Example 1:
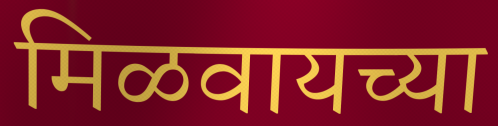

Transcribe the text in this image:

मिळवायच्या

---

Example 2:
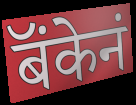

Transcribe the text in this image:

बॅंकेनं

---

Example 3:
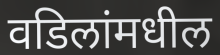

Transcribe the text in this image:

वडिलांमधील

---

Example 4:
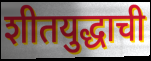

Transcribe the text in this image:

शीतयुद्धाची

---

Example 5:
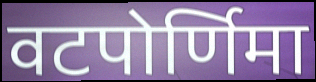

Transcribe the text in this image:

वटपोर्णिमा